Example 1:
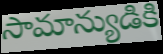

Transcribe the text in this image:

సామాన్యుడికి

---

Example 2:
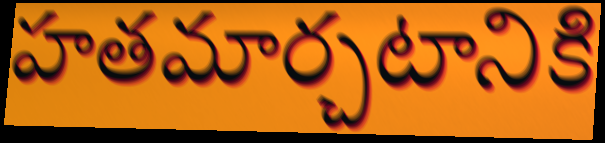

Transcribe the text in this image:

హతమార్చటానికి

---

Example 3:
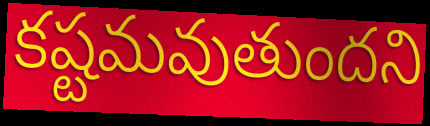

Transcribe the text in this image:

కష్టమవుతుందని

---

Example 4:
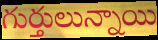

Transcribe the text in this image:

గుర్తులున్నాయి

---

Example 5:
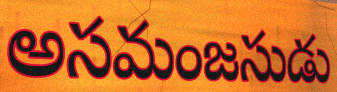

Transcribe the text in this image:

అసమంజసుడు